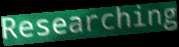
Researching